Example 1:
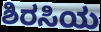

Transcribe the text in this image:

ಶಿರಸಿಯ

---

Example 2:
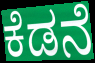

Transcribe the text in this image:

ಕೆಡನೆ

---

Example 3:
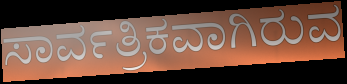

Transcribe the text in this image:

ಸಾರ್ವತ್ರಿಕವಾಗಿರುವ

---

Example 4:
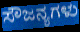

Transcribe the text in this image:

ಸೌಜನ್ಯಗಳು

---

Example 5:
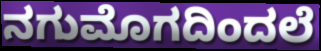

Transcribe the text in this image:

ನಗುಮೊಗದಿಂದಲೆ